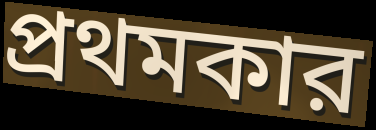
প্রথমকার